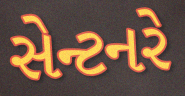
સેન્ટનરે